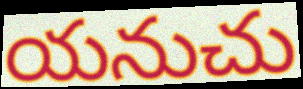
యనుచు